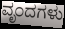
ವೃಂದಗಳು